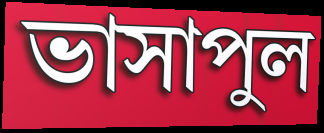
ভাসাপুল